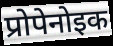
प्रोपेनोइक